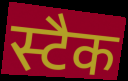
स्टैक